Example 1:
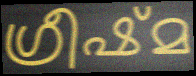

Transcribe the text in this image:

ഗ്രീഷ്മ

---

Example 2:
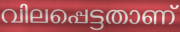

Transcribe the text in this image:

വിലപ്പെട്ടതാണ്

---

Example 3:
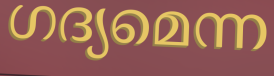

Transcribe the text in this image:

ഗദ്യമെന്ന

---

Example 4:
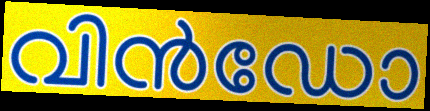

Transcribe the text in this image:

വിൻഡോ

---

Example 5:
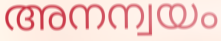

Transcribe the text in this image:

അനന്വയം